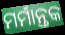
ମର୍ମାନ୍ତକ